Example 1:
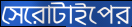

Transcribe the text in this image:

সেরোটাইপের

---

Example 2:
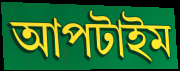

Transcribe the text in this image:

আপটাইম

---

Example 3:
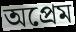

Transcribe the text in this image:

অপ্রেম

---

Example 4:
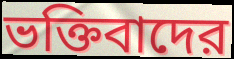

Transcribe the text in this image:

ভক্তিবাদের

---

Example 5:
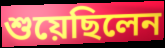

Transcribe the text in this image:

শুয়েছিলেন